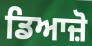
ਡਿਆਜ਼ੋ